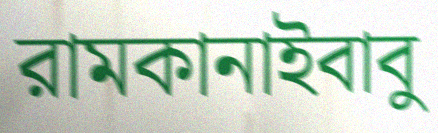
রামকানাইবাবু